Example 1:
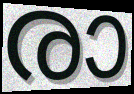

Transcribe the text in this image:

രാ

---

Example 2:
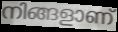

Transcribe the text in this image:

നിങ്ങളാണ്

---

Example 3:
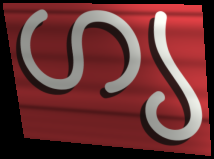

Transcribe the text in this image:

ഗ്യ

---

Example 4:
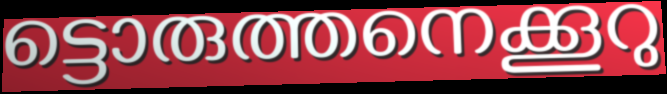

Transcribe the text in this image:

ട്ടൊരുത്തനെക്കൂറു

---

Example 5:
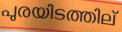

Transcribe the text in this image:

പുരയിടത്തില്